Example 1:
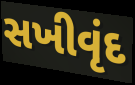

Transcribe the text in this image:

સખીવૃંદ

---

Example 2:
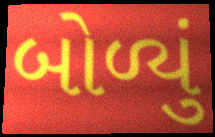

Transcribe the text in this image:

બોળ્યું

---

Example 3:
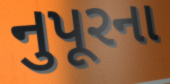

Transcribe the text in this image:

નુપૂરના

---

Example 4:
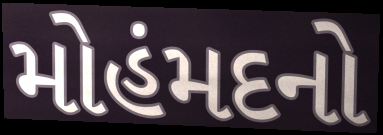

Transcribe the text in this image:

મોહંમદનો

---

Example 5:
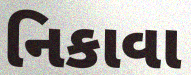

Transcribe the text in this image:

નિકાવા